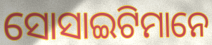
ସୋସାଇଟିମାନେ